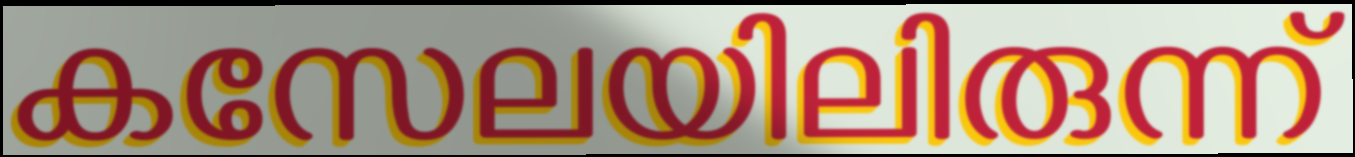
കസേലയിലിരുന്ന്